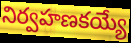
నిర్వహణకయ్యే